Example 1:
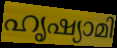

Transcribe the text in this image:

ഹൃഷ്യാമി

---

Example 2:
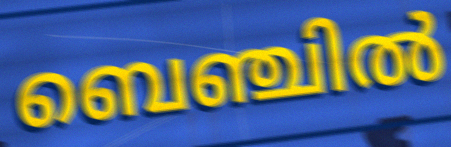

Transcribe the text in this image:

ബെഞ്ചിൽ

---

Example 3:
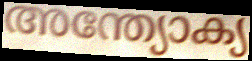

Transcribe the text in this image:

അന്ത്യോക്യ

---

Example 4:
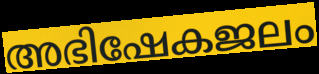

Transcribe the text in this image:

അഭിഷേകജലം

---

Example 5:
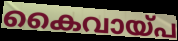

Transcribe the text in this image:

കൈവായ്പ